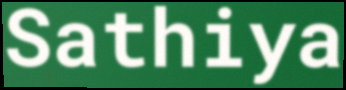
Sathiya